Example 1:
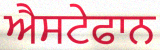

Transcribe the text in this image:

ਐਸਟੇਫਾਨ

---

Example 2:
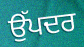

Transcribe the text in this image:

ਉੱਪਦਰ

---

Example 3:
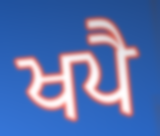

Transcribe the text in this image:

ਖਪੈ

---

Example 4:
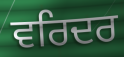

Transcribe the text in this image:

ਵਰਿਦਰ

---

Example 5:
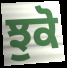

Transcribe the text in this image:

ਝੁਕੋ